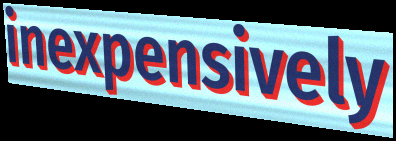
inexpensively